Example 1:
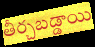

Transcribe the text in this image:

తీర్చబడ్డాయి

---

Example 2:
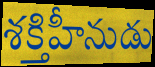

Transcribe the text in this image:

శక్తిహీనుడు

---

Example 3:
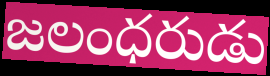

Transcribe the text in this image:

జలంధరుడు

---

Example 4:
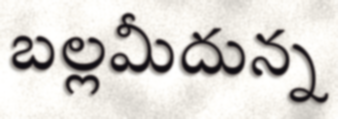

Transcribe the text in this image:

బల్లమీదున్న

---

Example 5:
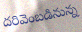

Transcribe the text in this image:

దరివెంబడినున్న